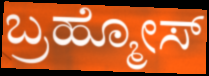
ಬ್ರಹ್ಮೋಸ್